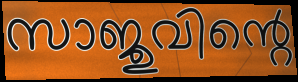
സാജുവിന്റെ